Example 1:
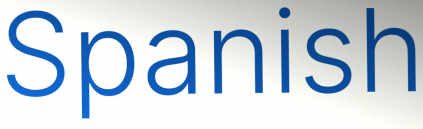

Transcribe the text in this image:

Spanish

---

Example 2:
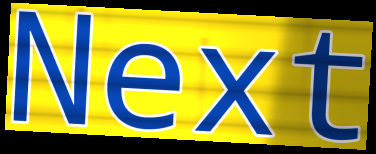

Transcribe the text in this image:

Next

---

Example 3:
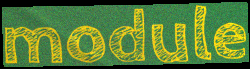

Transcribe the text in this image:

module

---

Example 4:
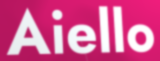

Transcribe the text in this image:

Aiello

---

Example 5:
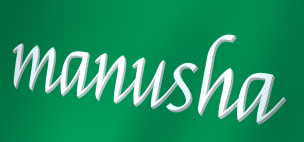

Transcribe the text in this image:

manusha